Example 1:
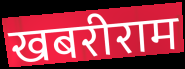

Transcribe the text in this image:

खबरीराम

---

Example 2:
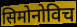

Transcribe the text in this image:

सिमोनोविच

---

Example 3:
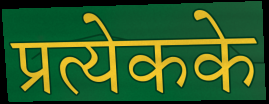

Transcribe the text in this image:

प्रत्येकके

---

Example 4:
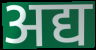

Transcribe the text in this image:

अद्य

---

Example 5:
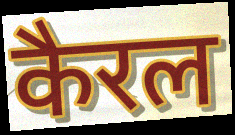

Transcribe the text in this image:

कैरल